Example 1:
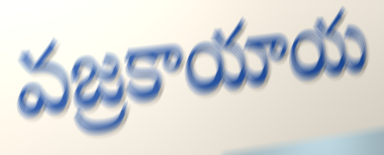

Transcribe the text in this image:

వజ్రకాయాయ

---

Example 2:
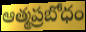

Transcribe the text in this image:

ఆత్మప్రబోధం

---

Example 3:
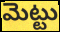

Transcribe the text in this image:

మెట్టు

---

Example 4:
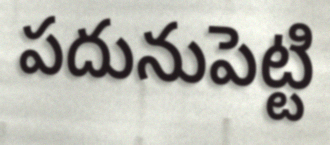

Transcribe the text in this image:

పదునుపెట్టి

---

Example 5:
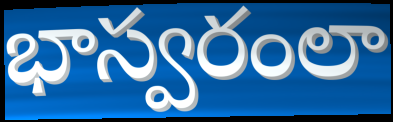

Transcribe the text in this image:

భాస్వరంలా